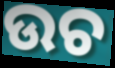
ଉଚ